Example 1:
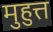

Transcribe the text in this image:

मुहुत्त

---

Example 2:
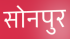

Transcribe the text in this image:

सोनपुर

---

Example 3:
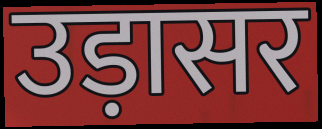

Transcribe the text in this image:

उड़ासर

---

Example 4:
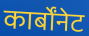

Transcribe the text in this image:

कार्बोंनेट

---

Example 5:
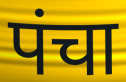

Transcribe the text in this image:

पंचा